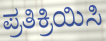
ಪ್ರತಿಕ್ರಿಯಿಸಿ